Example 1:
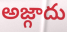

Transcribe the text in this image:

అజ్గాదు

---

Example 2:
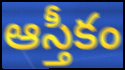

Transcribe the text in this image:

ఆస్తీకం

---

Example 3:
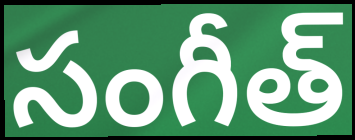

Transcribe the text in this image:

సంగీత్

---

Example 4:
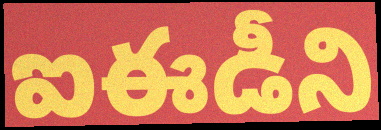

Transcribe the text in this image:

ఐఈడీని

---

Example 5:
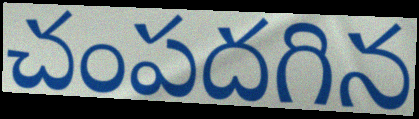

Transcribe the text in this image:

చంపదగిన